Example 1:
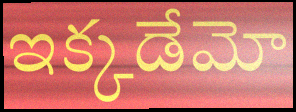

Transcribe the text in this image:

ఇక్కడేమో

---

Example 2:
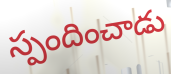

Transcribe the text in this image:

స్పందించాడు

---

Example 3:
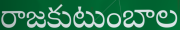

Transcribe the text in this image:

రాజకుటుంబాల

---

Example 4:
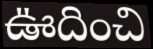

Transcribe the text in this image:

ఊదించి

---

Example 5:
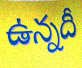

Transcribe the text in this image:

ఉన్నదీ